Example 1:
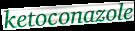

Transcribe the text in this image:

ketoconazole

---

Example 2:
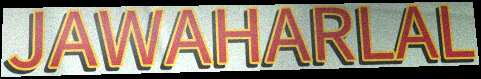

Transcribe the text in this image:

JAWAHARLAL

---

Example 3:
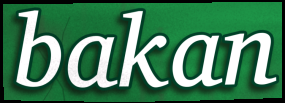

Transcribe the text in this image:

bakan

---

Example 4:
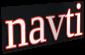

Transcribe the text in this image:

navti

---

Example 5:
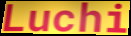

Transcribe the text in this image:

Luchi